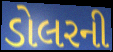
ડોલરની